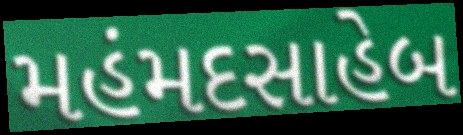
મહંમદસાહેબ